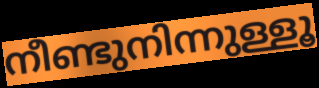
നീണ്ടുനിന്നുള്ളൂ